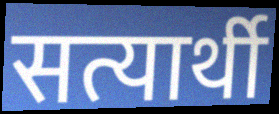
सत्यार्थी